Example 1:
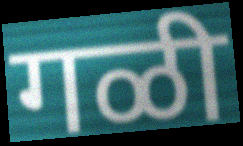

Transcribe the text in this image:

गळी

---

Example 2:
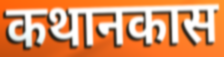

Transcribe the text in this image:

कथानकास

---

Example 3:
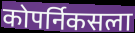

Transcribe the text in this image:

कोपर्निकसला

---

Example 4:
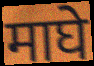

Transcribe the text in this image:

माघे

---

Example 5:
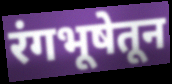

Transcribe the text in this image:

रंगभूषेतून